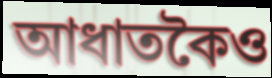
আধাতকৈও